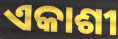
ଏକାଶୀ